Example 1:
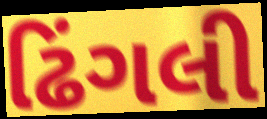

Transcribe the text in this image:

ઢિંગલી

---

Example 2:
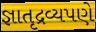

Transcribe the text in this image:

જ્ઞાતૃદ્રવ્યપણે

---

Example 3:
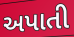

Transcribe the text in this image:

અપાતી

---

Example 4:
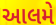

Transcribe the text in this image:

આલમે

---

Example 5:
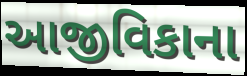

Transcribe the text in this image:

આજીવિકાના